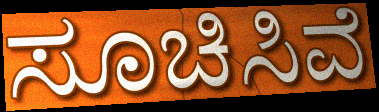
ಸೂಚಿಸಿವೆ